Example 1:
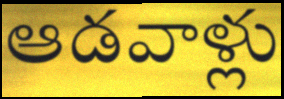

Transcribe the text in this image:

ఆడవాళ్లు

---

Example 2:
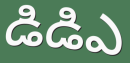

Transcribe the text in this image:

డిడిఎ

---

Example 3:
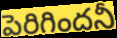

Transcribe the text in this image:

పెరిగిందనీ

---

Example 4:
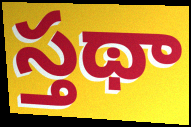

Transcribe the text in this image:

స్తథా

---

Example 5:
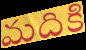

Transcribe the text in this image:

మదికి